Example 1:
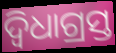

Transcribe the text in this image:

ଦ୍ୱିଧାଗ୍ରସ୍ତ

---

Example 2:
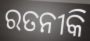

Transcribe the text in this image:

ରତନୀକି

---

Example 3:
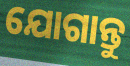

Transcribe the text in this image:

ଯୋଗାନ୍ତୁ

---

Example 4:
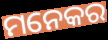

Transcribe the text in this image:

ମନେକର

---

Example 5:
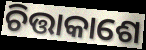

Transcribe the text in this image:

ଚିତ୍ତାକାଶେ